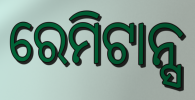
ରେମିଟାନ୍ସ